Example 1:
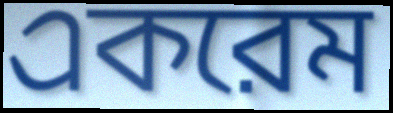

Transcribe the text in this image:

একরেম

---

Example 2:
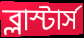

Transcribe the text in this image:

ব্লাস্টার্স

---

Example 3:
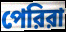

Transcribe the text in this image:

পেরিরা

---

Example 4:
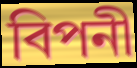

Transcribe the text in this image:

বিপনী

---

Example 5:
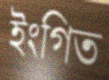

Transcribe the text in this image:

ইংগিত